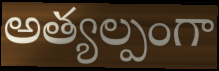
అత్యల్పంగా